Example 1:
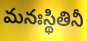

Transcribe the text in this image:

మనఃస్థితినీ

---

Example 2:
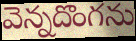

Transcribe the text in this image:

వెన్నదొంగను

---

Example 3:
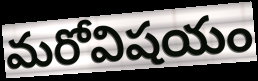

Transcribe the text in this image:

మరోవిషయం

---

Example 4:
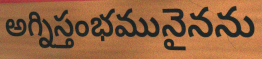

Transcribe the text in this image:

అగ్నిస్తంభమునైనను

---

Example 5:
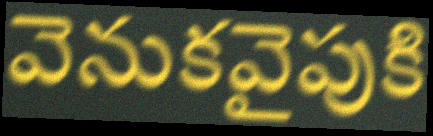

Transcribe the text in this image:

వెనుకవైపుకి